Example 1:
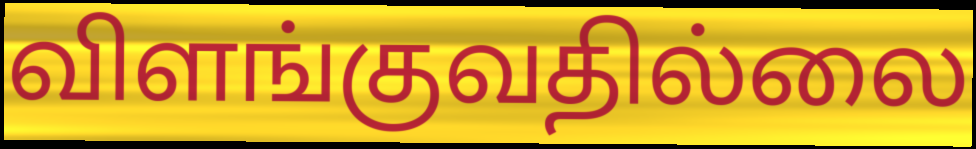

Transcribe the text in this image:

விளங்குவதில்லை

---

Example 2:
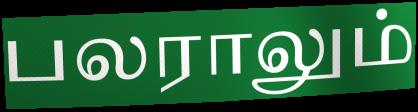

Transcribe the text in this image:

பலராலும்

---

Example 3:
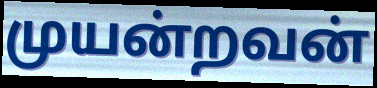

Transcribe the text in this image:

முயன்றவன்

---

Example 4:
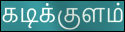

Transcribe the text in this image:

கடிக்குளம்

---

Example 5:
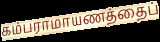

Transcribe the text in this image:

கம்பராமாயணத்தைப்